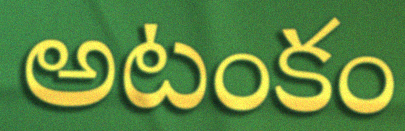
అటంకం